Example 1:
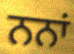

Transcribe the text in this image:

ਨਨਾਂ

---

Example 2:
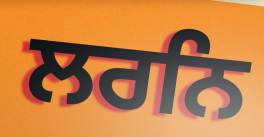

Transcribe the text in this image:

ਲਰਨਿ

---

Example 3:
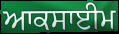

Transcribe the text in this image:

ਆਕਸਾਈਮ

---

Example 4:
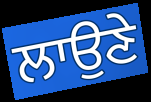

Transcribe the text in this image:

ਲਾਉਣੇ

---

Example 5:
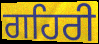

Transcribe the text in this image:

ਗਹਿਰੀ